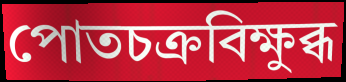
পোতচক্রবিক্ষুব্ধ